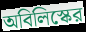
অবিলিস্কের